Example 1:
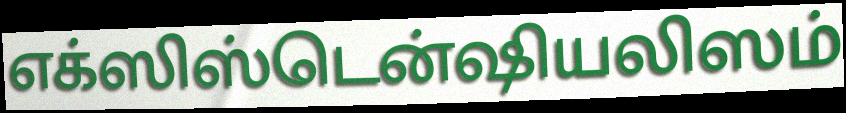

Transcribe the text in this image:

எக்ஸிஸ்டென்ஷியலிஸம்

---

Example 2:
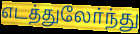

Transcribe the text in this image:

எடத்துலேர்ந்து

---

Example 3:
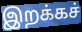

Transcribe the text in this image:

இறக்கச்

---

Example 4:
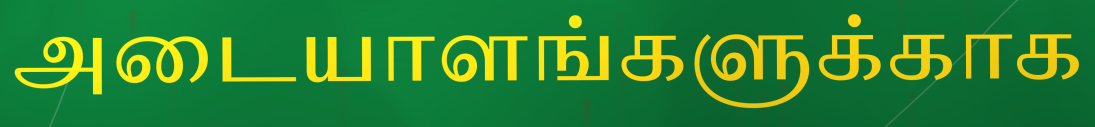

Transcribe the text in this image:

அடையாளங்களுக்காக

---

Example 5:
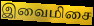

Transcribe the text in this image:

இவைமிசை